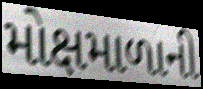
મોક્ષમાળાની